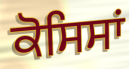
ਕੋਸਿਸਾਂ